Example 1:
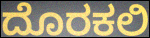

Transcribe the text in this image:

ದೊರಕಲಿ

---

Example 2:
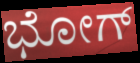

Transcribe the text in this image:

ಭೋಗ್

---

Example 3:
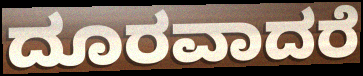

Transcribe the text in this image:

ದೂರವಾದರೆ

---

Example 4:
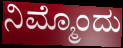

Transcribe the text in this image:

ನಿಮ್ಮೊಂದು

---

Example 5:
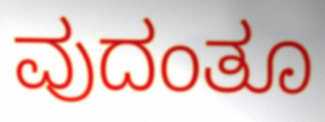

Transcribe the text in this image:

ವುದಂತೂ